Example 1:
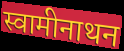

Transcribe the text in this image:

स्वामीनाथन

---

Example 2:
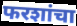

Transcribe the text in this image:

फरशांचा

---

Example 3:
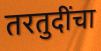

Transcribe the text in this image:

तरतुदींचा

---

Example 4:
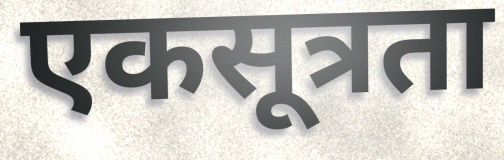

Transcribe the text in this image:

एकसूत्रता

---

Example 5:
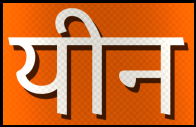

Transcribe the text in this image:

यीन